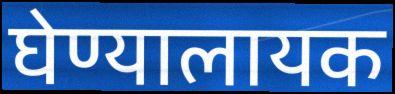
घेण्यालायक